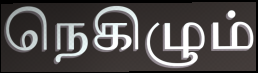
நெகிழும்